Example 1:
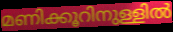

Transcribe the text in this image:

മണിക്കൂറിനുള്ളിൽ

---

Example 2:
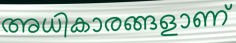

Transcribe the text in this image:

അധികാരങ്ങളാണ്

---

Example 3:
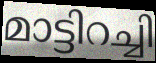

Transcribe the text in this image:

മാട്ടിറച്ചി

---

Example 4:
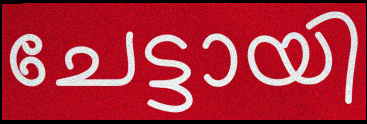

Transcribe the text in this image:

ചേട്ടായി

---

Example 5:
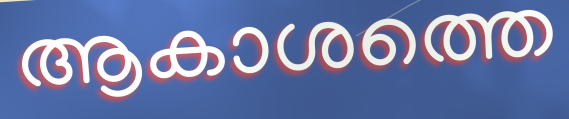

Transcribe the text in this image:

ആകാശത്തെ